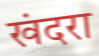
खंदरा